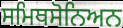
ਸਮਿਥਸੋਨਿਅਨ